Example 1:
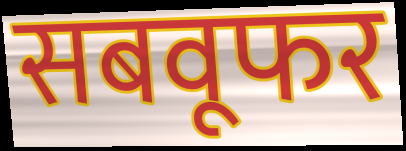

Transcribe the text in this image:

सबवूफर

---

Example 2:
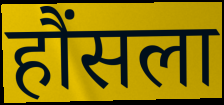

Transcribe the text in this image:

हौंसला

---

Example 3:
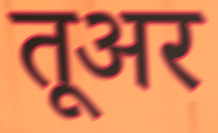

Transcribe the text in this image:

तूअर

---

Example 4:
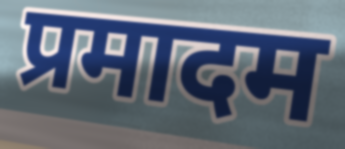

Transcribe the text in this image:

प्रमादम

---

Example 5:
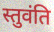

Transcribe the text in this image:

स्तुवंति